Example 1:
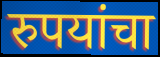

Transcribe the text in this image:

रुपयांचा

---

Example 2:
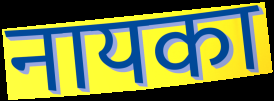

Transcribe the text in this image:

नायका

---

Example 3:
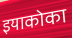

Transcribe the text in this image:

इयाकोका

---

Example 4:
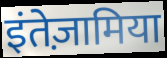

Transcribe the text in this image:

इंतेज़ामिया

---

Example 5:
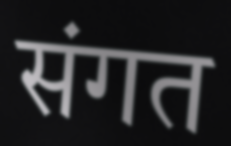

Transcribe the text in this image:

संगत